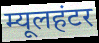
म्यूलहंटर